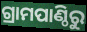
ଗ୍ରାମପାଣ୍ଠିରୁ